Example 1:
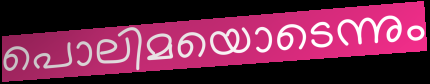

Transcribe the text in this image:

പൊലിമയൊടെന്നും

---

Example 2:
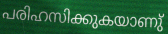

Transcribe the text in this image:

പരിഹസിക്കുകയാണു്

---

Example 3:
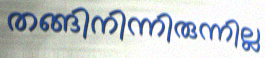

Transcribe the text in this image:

തങ്ങിനിന്നിരുന്നില്ല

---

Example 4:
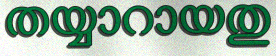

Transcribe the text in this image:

തയ്യാറായതു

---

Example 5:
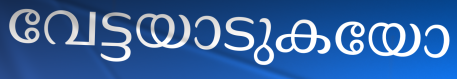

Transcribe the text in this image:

വേട്ടയാടുകയോ